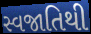
સ્વજાતિથી